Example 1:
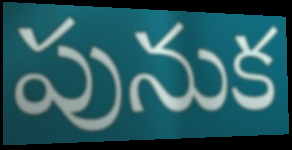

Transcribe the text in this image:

పునుక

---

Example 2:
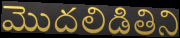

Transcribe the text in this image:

మొదలిడితిని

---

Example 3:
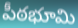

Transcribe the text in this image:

పీఠభూమి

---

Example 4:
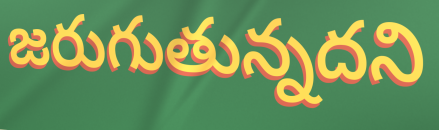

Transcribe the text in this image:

జరుగుతున్నదని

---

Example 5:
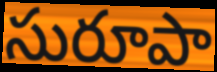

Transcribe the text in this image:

సురూపా